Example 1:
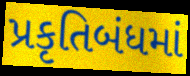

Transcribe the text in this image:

પ્રકૃતિબંધમાં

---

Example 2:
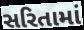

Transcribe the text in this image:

સરિતામાં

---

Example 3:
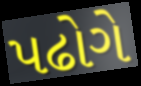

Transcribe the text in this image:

પઢોગે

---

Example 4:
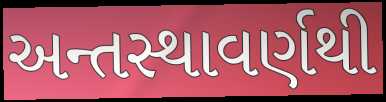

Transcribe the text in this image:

અન્તસ્થાવર્ણથી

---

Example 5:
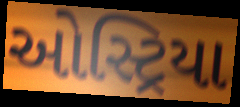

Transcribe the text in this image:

ઓસ્ટ્રિયા